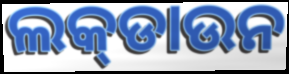
ଲକ୍‌ଡାଉନ